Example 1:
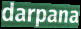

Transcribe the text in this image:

darpana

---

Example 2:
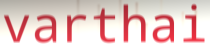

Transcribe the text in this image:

varthai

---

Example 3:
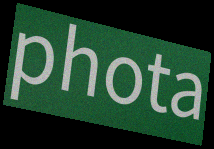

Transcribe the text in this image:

phota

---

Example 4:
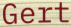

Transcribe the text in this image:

Gert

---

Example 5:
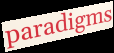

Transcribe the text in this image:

paradigms